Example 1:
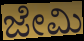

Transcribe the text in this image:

ಜೇಮಿ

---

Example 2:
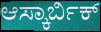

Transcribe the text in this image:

ಆಸ್ಕಾರ್ಬಿಕ್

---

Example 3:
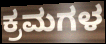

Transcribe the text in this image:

ಕ್ರಮಗಳ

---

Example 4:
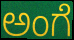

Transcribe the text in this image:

ಅಂಗೆ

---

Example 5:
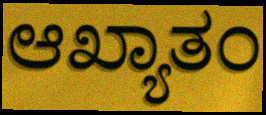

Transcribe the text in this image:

ಆಖ್ಯಾತಂ